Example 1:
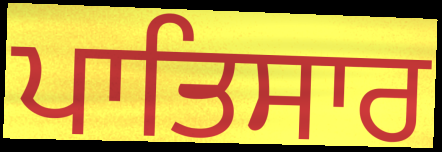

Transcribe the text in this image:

ਪਾਤਿਸਾਰ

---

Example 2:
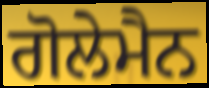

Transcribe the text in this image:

ਗੋਲੇਮੈਨ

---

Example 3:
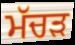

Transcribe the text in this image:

ਮੱਚੜ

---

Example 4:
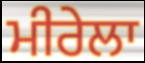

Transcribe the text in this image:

ਮੀਰੇਲਾ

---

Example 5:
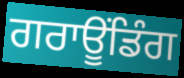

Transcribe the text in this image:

ਗਰਾਊਂਡਿੰਗ